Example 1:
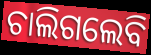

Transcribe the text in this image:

ଚାଲିଗଲେବି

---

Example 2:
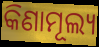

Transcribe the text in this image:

କିଣାମୂଲ୍ୟ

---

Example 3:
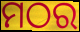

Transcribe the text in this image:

ମଠର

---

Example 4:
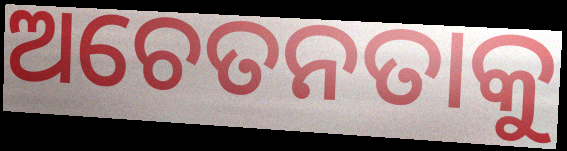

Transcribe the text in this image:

ଅଚେତନତାକୁ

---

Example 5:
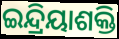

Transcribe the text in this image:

ଇନ୍ଦ୍ରିୟାଶକ୍ତି